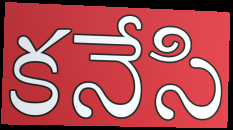
కనేసి